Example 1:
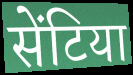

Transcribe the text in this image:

सेंटिया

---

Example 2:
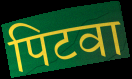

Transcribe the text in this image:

पिटवा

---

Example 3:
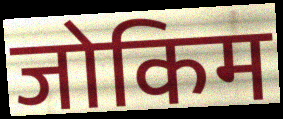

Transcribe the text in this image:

जोकिम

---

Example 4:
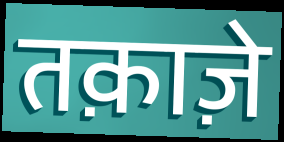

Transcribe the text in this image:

तक़ाज़े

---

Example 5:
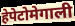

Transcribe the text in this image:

हेपेटोमेगाली